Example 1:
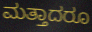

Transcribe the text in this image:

ಮತ್ತಾದರೂ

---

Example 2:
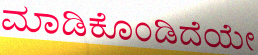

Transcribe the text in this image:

ಮಾಡಿಕೊಂಡಿದೆಯೇ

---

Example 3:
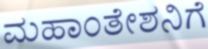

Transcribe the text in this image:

ಮಹಾಂತೇಶನಿಗೆ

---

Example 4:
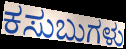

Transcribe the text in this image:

ಕಸುಬುಗಳು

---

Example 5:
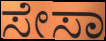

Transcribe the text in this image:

ಸೇಸಾ